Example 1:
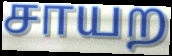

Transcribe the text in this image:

சாயற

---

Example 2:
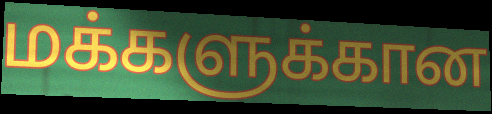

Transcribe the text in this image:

மக்களுக்கான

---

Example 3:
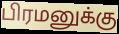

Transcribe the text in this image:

பிரமனுக்கு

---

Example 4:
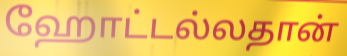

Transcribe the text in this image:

ஹோட்டல்லதான்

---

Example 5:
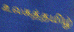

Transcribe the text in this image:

உலகத்தமிழ்